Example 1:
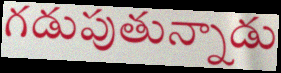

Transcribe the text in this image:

గడుపుతున్నాడు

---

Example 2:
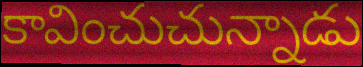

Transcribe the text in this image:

కావించుచున్నాడు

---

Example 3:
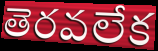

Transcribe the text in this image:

తెరవలేక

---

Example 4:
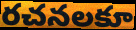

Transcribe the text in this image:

రచనలకూ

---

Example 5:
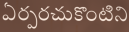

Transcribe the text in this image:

ఏర్పరచుకొంటిని